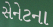
સેનેટના